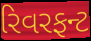
રિવરફન્ટ